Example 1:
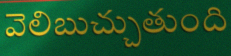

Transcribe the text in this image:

వెలిబుచ్చుతుంది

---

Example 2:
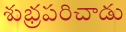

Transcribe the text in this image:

శుభ్రపరిచాడు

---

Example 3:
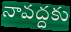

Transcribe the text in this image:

నావద్దకు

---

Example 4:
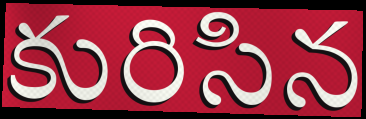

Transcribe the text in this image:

కురిసిన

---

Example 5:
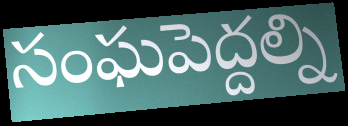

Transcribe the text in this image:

సంఘపెద్దల్ని